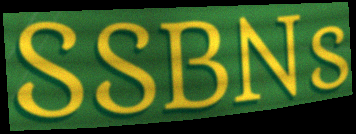
SSBNs